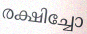
രക്ഷിച്ചോ